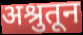
अश्रुतून